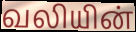
வலியின்